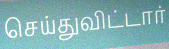
செய்துவிட்டார்